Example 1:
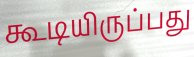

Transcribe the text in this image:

கூடியிருப்பது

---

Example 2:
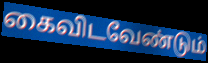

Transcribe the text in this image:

கைவிடவேண்டும்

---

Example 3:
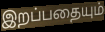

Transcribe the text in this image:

இறப்பதையும்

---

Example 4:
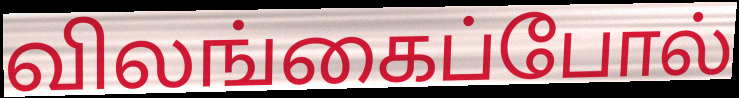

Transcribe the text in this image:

விலங்கைப்போல்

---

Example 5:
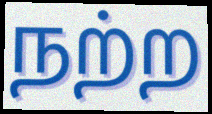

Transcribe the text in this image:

நற்ற